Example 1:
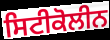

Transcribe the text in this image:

ਸਿਟੀਕੋਲੀਨ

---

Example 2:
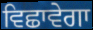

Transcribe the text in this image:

ਵਿਛਾਵੇਗਾ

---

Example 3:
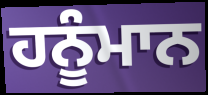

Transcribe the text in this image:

ਹਨੂੰਮਾਨ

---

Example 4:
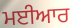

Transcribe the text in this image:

ਮਈਆਰ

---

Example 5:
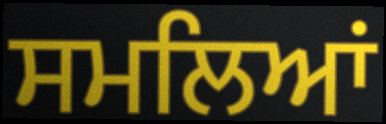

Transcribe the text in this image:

ਸਮਲਿਆਂ